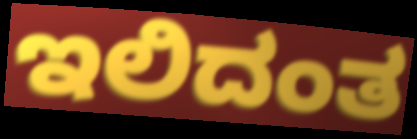
ಇಲಿದಂತ